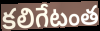
కలిగేటంత